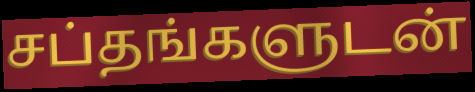
சப்தங்களுடன்